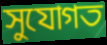
সুযোগত